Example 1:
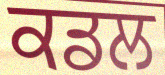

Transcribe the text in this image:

ਕਡਲ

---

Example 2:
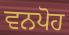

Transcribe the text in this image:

ਵਨਪੋਹ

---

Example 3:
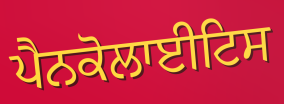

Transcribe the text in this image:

ਪੈਨਕੋਲਾਈਟਿਸ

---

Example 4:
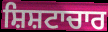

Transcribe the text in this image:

ਸ਼ਿਸ਼ਟਾਚਾਰ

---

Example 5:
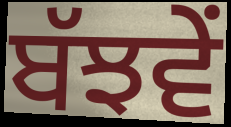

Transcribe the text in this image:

ਬੱਝਵੇਂ